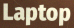
Laptop